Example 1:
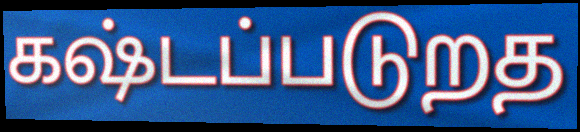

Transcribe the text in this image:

கஷ்டப்படுறத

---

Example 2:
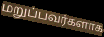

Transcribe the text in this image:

மறுப்பவர்களாக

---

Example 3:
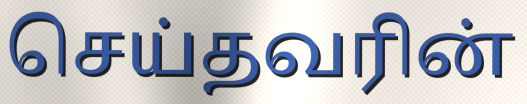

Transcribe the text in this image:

செய்தவரின்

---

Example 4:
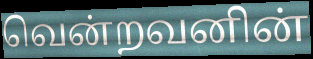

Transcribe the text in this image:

வென்றவனின்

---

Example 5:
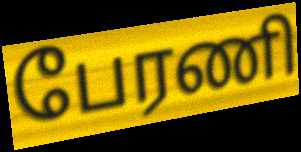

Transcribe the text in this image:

பேரணி